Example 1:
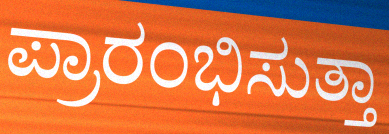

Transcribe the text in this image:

ಪ್ರಾರಂಭಿಸುತ್ತಾ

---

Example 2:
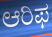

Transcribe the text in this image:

ಆರಿಫ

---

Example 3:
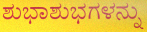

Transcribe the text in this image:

ಶುಭಾಶುಭಗಳನ್ನು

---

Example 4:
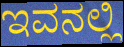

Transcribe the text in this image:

ಇವನಲ್ಲಿ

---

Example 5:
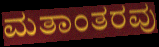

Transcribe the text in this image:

ಮತಾಂತರವು